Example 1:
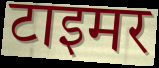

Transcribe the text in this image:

टाइमर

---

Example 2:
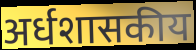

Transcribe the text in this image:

अर्धशासकीय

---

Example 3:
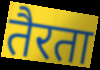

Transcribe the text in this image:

तैरता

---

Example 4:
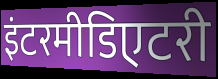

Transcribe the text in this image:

इंटरमीडिएटरी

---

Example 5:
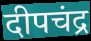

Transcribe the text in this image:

दीपचंद्र